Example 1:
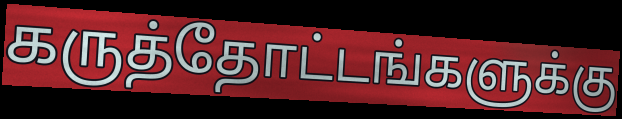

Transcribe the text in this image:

கருத்தோட்டங்களுக்கு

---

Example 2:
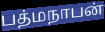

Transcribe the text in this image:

பத்மநாபன்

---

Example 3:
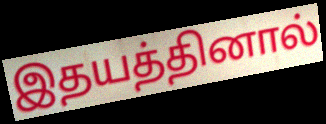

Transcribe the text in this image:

இதயத்தினால்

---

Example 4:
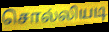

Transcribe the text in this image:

சொல்லியடி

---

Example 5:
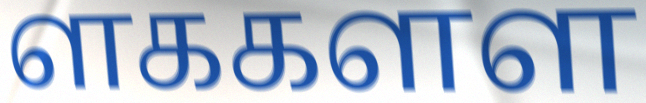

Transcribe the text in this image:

ளககளள